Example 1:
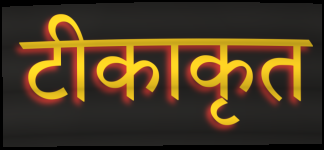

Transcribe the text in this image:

टीकाकृत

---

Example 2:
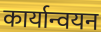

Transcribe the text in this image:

कार्यान्‍वयन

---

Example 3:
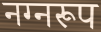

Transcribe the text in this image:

नग्नरूप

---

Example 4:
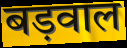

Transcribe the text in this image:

बड़वाल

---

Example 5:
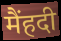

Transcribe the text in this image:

मैंहदी